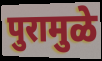
पुरामुळे